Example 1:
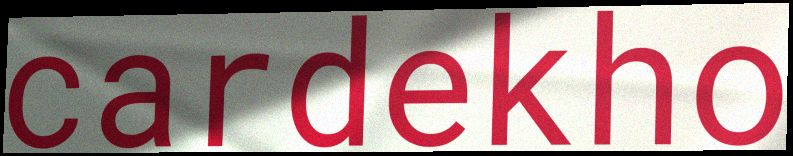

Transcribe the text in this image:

cardekho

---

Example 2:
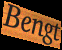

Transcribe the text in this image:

Bengt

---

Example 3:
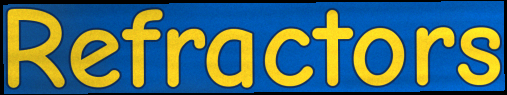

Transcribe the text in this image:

Refractors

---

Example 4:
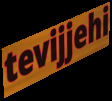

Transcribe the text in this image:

tevijjehi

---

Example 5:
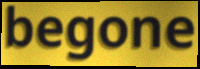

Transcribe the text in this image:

begone